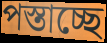
পস্তাচ্ছে